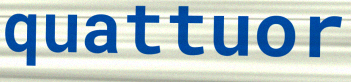
quattuor